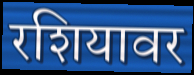
रशियावर